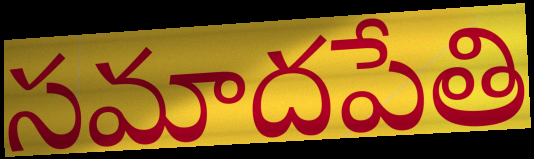
సమాదపేతి